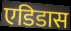
एडिडास